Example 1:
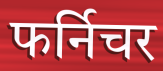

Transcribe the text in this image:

फर्निचर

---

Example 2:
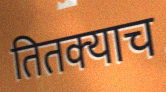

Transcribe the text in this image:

तितक्‍याच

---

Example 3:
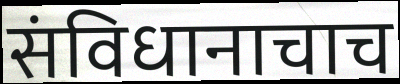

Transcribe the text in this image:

संविधानाचाच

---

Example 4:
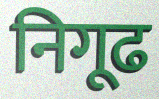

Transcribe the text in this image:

निगूढ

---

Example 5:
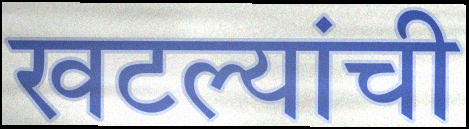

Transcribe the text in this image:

खटल्यांची